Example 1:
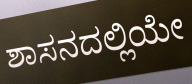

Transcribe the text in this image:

ಶಾಸನದಲ್ಲಿಯೇ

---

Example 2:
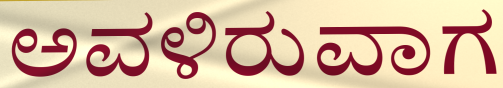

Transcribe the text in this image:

ಅವಳಿರುವಾಗ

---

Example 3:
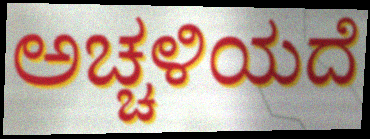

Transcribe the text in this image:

ಅಚ್ಚಳಿಯದೆ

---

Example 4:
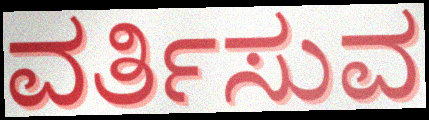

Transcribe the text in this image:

ವರ್ತಿಸುವ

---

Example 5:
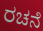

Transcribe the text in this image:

ರಚನೆ